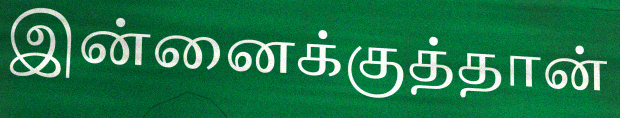
இன்னைக்குத்தான்